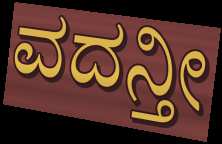
ವದನ್ತೀ